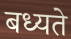
बध्यते